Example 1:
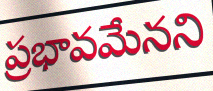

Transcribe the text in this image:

ప్రభావమేనని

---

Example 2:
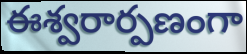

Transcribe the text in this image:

ఈశ్వరార్పణంగా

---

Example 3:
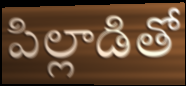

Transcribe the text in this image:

పిల్లాడితో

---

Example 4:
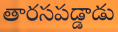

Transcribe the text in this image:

తారసపడ్డాడు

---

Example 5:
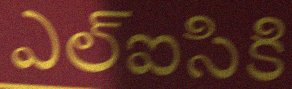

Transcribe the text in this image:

ఎల్ఐసికి